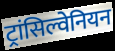
ट्रांसिल्वेनियन